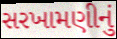
સરખામણીનું